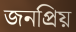
জনপ্রিয়